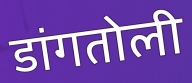
डांगतोली